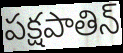
పక్షపాతిన్